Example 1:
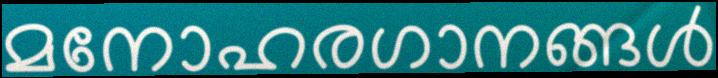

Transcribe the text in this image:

മനോഹരഗാനങ്ങൾ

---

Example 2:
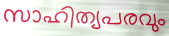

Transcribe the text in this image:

സാഹിത്യപരവും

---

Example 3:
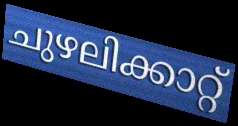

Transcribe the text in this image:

ചുഴലിക്കാറ്റ്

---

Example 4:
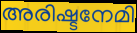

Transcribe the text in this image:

അരിഷ്ടനേമി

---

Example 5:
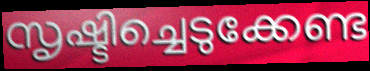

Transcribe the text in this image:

സൃഷ്ടിച്ചെടുക്കേണ്ട